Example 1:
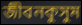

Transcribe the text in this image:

জীবনকুসুম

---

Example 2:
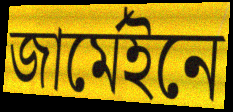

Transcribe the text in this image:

জার্মেইনে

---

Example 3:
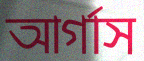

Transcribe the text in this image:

আর্গাস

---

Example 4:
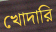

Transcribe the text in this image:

খোদারি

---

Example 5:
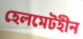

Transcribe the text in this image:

হেলমেটহীন